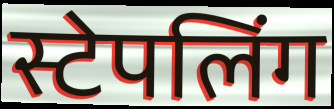
स्टेपलिंग